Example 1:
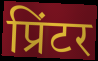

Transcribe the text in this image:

प्रिंटर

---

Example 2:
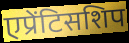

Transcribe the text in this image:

एप्रेंटिसशिप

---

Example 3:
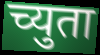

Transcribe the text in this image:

च्युता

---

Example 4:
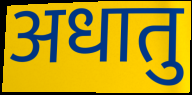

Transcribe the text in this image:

अधातु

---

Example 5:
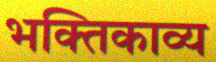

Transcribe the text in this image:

भक्तिकाव्य